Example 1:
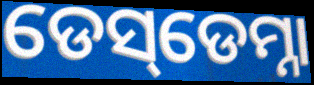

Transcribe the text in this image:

ଡେସ୍‌ଡେମ୍ନା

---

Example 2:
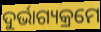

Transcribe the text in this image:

ଦୁର୍ଭାଗ୍ୟକ୍ରମେ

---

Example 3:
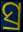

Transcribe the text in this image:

ସ୍ର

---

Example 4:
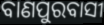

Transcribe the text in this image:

ବାଣପୁରବାସୀ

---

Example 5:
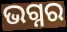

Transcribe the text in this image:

ଭଗ୍ନର